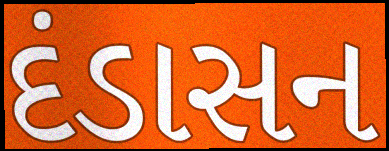
દંડાસન